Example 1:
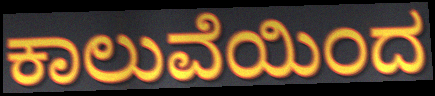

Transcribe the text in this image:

ಕಾಲುವೆಯಿಂದ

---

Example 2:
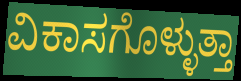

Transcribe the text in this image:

ವಿಕಾಸಗೊಳ್ಳುತ್ತಾ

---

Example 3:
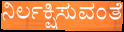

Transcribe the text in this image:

ನಿರ್ಲಕ್ಷಿಸುವಂತೆ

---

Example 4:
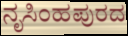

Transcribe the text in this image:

ನೃಸಿಂಹಪುರದ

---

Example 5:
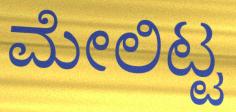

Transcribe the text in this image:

ಮೇಲಿಟ್ಟ